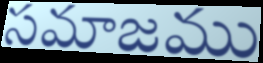
సమాజము